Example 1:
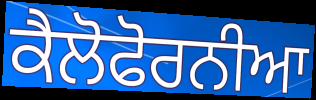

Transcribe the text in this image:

ਕੈਲੋਫੋਰਨੀਆ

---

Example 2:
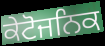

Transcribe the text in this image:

ਕੇਟੋਜਨਿਕ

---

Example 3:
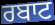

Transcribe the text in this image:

ਰਬਾਟ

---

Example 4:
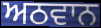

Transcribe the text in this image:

ਅਠਵਾਨ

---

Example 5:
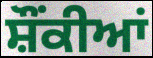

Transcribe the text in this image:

ਸ਼ੌਂਕੀਆਂ